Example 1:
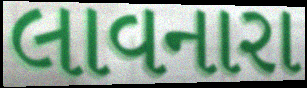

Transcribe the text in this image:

લાવનારા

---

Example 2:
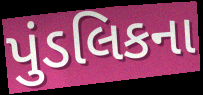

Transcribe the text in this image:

પુંડલિકના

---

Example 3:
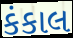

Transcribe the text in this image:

કંકાલ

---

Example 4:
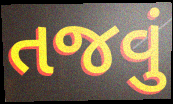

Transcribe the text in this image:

તજવું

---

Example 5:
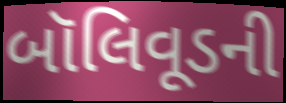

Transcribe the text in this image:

બૉલિવૂડની